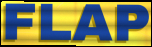
FLAP